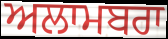
ਅਲਾਮਬਰਾ